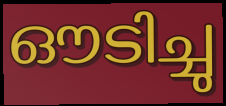
ഔടിച്ചു